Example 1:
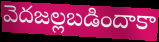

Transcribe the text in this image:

వెదజల్లబడిందాకా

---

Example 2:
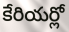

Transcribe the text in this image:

కేరియర్లో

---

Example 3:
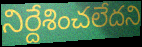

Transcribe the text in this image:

నిర్దేశించలేదని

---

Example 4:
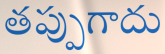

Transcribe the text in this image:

తప్పుగాదు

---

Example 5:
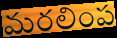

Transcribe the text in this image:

మరలింప